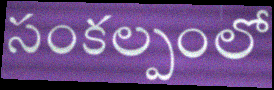
సంకల్పంలో